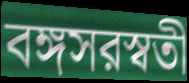
বঙ্গসরস্বতী